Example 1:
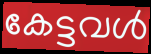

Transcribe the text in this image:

കേട്ടവൾ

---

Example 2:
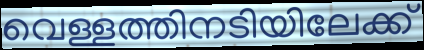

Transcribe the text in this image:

വെള്ളത്തിനടിയിലേക്ക്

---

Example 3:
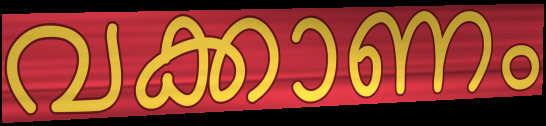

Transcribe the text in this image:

വക്കാണം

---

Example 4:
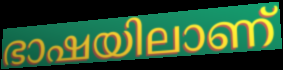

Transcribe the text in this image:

ഭാഷയിലാണ്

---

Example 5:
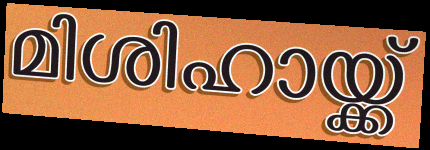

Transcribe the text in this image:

മിശിഹായ്ക്ക്